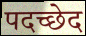
पदच्छेद